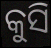
କୁସି